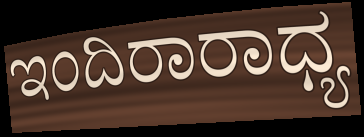
ಇಂದಿರಾರಾಧ್ಯ